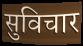
सुविचार